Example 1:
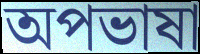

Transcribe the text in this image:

অপভাষা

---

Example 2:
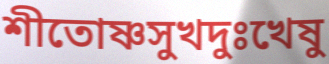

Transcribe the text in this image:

শীতোষ্ণসুখদুঃখেষু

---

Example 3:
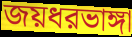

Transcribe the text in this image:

জয়ধরভাঙ্গা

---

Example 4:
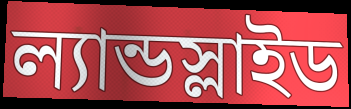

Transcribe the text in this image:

ল্যান্ডস্লাইড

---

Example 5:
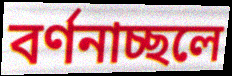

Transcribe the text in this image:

বর্ণনাচ্ছলে